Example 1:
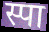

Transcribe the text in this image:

स्पा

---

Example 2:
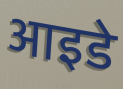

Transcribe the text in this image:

आइडे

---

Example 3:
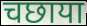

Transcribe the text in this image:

चछाया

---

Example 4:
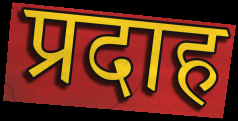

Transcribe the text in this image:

प्रदाह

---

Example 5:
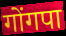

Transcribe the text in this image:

गोंगपा